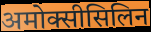
अमोक्सीसिलिन